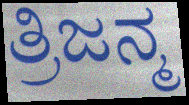
ತ್ರಿಜನ್ಮ